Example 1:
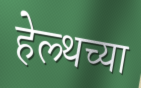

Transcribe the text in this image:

हेल्थच्या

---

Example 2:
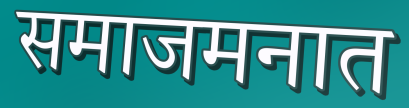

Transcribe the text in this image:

समाजमनात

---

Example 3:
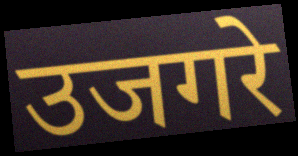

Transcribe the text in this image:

उजगरे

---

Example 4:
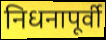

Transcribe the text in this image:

निधनापूर्वी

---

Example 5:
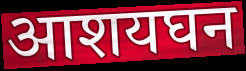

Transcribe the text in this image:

आशयघन